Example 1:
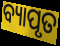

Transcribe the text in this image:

ବ୍ୟାପୃତ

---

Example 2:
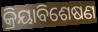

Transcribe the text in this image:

କ୍ରିୟାବିଶେଷଣ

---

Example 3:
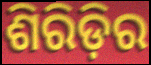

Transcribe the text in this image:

ଶିରିଡ଼ିର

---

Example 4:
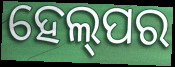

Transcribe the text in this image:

ହେଲ୍‌ପର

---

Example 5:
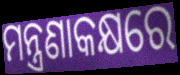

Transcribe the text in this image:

ମନ୍ତ୍ରଣାକକ୍ଷରେ